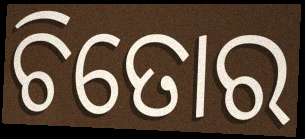
ଚିତୋର